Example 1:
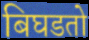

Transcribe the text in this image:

बिघडतो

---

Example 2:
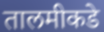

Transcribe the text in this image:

तालमीकडे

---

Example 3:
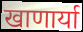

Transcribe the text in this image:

खाणार्या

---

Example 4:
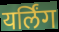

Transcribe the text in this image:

यर्लिंग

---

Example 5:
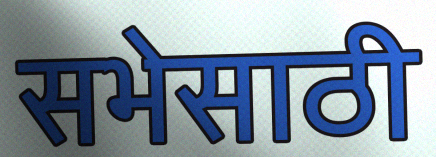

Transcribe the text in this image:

सभेसाठी